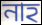
নাহ